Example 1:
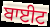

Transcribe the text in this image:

ਬਾਈਟ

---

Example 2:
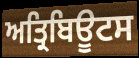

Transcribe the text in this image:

ਅਤ੍ਰਿਬਿਊਟਸ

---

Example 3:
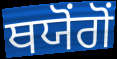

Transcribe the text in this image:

ਥਯੋਂਗੋਂ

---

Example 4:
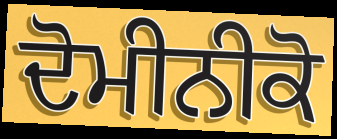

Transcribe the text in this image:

ਦੋਮੀਨੀਕੋ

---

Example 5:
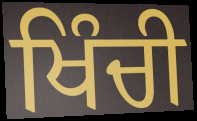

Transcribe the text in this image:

ਖਿੰਚੀ